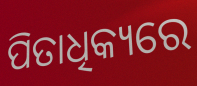
ପିତାଧିକ୍ୟରେ